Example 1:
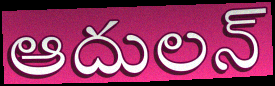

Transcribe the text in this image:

ఆదులన్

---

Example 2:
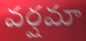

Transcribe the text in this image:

వర్షమా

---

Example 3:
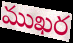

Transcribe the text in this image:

ముఖర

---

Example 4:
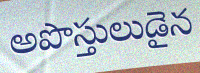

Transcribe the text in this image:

అపొస్తులుడైన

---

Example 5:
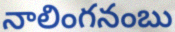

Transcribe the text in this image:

నాలింగనంబు